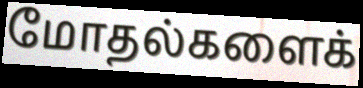
மோதல்களைக்